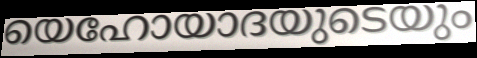
യെഹോയാദയുടെയും